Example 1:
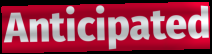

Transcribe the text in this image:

Anticipated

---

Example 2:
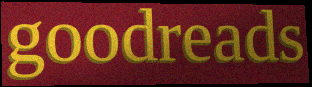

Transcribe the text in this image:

goodreads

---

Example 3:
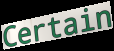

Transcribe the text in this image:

Certain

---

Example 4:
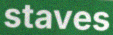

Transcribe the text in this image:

staves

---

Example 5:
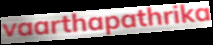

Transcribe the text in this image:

vaarthapathrika